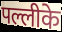
पल्लीके